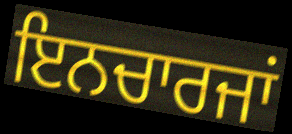
ਇਨਚਾਰਜਾਂ